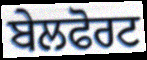
ਬੇਲਫੋਰਟ